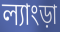
ল্যাংড়া